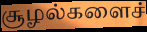
சூழல்களைச்